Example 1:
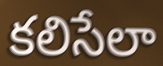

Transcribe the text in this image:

కలిసేలా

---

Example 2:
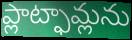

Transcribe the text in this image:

ప్లాట్ఫామ్లను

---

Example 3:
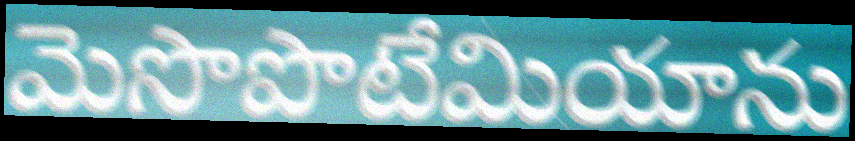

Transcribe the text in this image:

మెసొపొటేమియాను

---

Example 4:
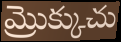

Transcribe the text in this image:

మ్రొక్కుచు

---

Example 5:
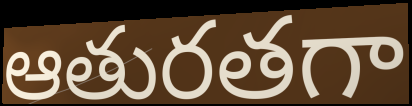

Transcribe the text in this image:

ఆతురతగా